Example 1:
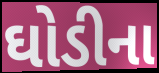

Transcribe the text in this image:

ઘોડીના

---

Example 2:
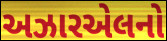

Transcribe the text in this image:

અઝારએલનો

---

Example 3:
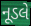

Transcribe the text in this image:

નૂડલે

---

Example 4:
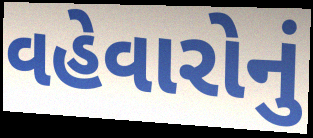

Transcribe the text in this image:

વહેવારોનું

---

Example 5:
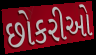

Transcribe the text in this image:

છોકરીઓ